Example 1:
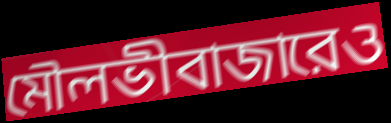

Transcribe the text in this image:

মৌলভীবাজারেও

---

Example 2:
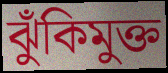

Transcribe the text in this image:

ঝুঁকিমুক্ত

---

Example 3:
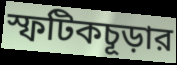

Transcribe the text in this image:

স্ফটিকচূড়ার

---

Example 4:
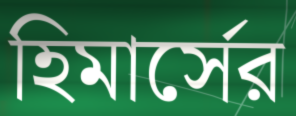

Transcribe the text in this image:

হিমার্সের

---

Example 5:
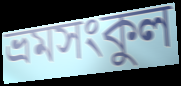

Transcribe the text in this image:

ভ্রমসংকুল